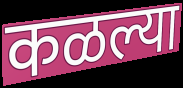
कळल्या